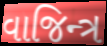
વાજિન્ત્ર